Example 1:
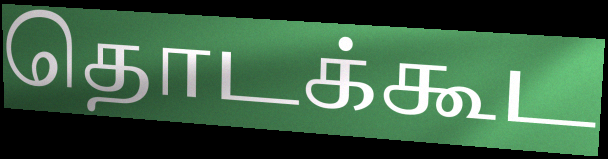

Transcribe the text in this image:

தொடக்கூட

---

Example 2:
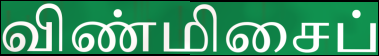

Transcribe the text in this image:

விண்மிசைப்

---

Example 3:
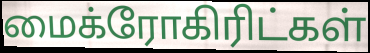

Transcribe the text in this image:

மைக்ரோகிரிட்கள்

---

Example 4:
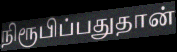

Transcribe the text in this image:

நிரூபிப்பதுதான்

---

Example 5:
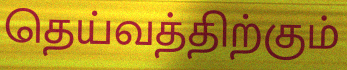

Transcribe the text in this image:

தெய்வத்திற்கும்